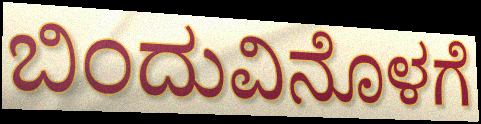
ಬಿಂದುವಿನೊಳಗೆ